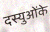
दस्युओंके